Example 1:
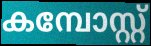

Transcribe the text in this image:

കമ്പോസ്റ്റ്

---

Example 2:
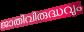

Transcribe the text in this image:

ജാതിവിരുദ്ധവും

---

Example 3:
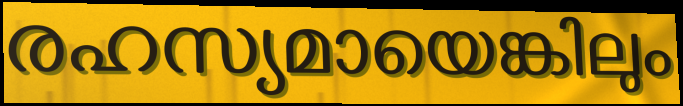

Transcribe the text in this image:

രഹസ്യമായെങ്കിലും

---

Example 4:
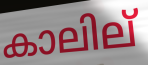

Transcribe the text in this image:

കാലില്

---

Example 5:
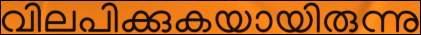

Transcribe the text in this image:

വിലപിക്കുകയായിരുന്നു